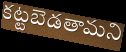
కట్టబెడతామని